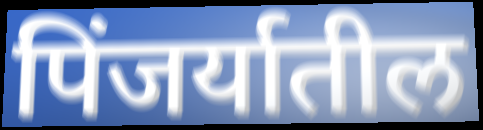
पिंजर्यातील